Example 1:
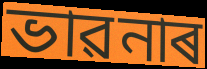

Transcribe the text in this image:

ভাৱনাৰ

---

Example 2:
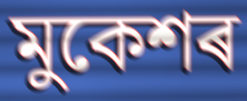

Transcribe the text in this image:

মুকেশৰ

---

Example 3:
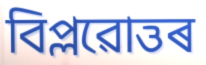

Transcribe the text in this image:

বিপ্লৱোত্তৰ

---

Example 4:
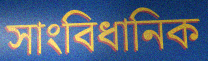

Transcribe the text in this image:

সাংবিধানিক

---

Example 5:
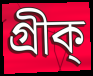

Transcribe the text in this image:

গ্ৰীক্